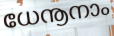
ധേനൂനാം